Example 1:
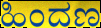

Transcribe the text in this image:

ಹಿಂದಣ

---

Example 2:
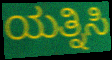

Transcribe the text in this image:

ಯತ್ನಿಸಿ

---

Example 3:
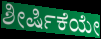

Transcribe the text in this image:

ಶೀರ್ಷಿಕೆಯೇ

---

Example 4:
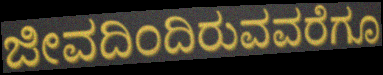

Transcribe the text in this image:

ಜೀವದಿಂದಿರುವವರೆಗೂ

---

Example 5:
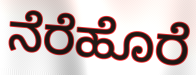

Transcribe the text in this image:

ನೆರೆಹೊರೆ